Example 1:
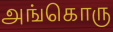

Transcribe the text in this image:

அங்கொரு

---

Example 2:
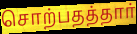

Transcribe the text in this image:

சொற்பதத்தார்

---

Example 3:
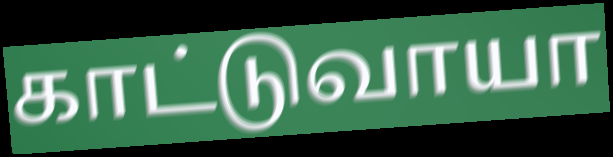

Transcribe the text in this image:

காட்டுவாயா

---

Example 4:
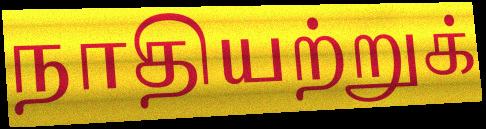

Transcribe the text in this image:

நாதியற்றுக்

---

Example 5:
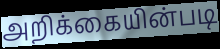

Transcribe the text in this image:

அறிக்கையின்படி